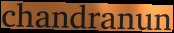
chandranun